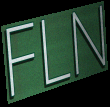
FLN